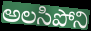
అలసిపోని